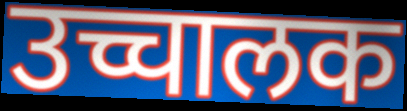
उच्चालक